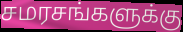
சமரசங்களுக்கு